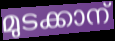
മുടക്കാന്